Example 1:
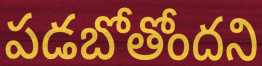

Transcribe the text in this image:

పడబోతోందని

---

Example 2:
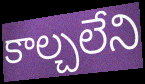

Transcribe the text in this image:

కాల్చలేని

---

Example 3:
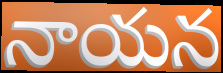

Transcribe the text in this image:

నాయన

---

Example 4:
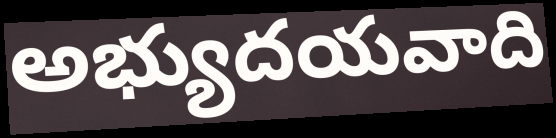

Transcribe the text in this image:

అభ్యుదయవాది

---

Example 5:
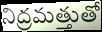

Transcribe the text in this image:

నిద్రమత్తుతో